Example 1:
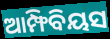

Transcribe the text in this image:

ଆମ୍ଫିବିୟସ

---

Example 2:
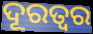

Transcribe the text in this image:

ଦୂରତ୍ଵର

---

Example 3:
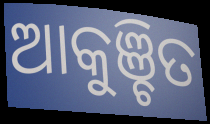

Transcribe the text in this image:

ଆକୁଞ୍ଚିତ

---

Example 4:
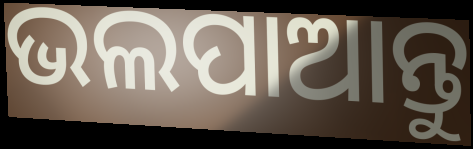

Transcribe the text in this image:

ଭଲପାଆନ୍ତୁ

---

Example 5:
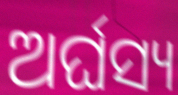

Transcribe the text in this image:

ଅର୍ଘସ୍ୟ